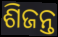
ଶିଜନ୍ତ